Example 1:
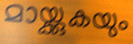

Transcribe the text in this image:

മായ്ക്കുകയും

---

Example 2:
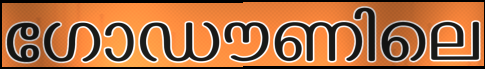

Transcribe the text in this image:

ഗോഡൗണിലെ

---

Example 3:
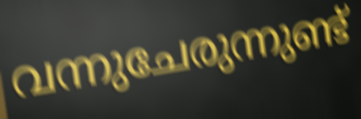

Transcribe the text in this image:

വന്നുചേരുന്നുണ്ട്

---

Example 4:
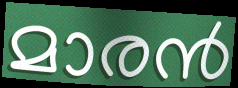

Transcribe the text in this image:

മാരൻ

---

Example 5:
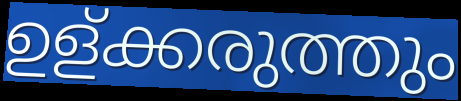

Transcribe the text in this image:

ഉള്ക്കരുത്തും